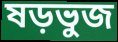
ষড়ভুজ